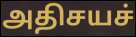
அதிசயச்